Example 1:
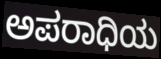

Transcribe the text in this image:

ಅಪರಾಧಿಯ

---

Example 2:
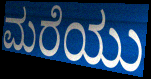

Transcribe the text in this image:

ಮರೆಯು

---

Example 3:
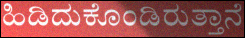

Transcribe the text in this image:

ಹಿಡಿದುಕೊಂಡಿರುತ್ತಾನೆ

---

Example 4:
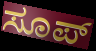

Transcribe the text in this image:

ಸೂಪ್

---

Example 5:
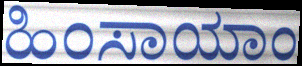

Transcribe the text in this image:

ಹಿಂಸಾಯಾಂ